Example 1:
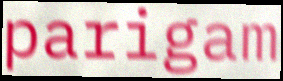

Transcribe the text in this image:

parigam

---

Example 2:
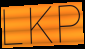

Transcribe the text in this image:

LKP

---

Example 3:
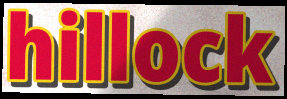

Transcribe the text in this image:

hillock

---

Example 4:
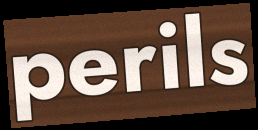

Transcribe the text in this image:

perils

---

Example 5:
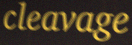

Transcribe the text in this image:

cleavage